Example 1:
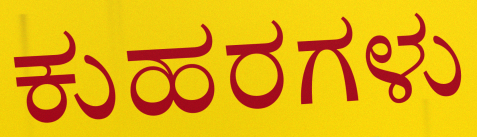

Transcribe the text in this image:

ಕುಹರಗಳು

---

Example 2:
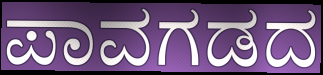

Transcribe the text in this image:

ಪಾವಗಡದ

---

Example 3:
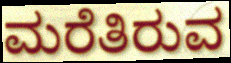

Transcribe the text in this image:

ಮರೆತಿರುವ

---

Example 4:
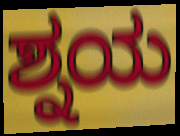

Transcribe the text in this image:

ಶ್ನಯ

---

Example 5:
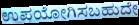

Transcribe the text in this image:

ಉಪಯೋಗಿಸಬಹುದೇ